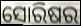
ସୋରିଷର